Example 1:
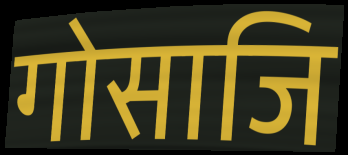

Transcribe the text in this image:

गोसाजि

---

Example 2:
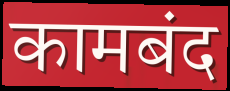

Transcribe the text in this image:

कामबंद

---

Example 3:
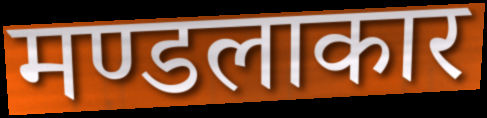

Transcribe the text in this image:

मण्डलाकार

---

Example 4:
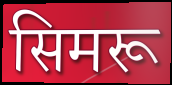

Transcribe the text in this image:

सिमरू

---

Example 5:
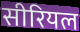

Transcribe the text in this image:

सीरियल